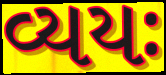
વ્યયઃ